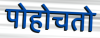
पोहोचतो